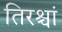
तिरश्चां